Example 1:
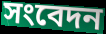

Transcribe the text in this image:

সংবেদন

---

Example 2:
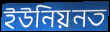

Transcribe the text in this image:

ইউনিয়নত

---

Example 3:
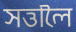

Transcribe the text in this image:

সত্তালৈ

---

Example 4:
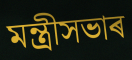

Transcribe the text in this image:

মন্ত্ৰীসভাৰ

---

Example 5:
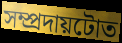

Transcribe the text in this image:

সম্প্ৰদায়টোত